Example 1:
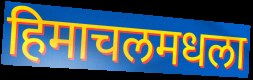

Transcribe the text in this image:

हिमाचलमधला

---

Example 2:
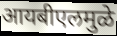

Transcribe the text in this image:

आयबीएलमुळे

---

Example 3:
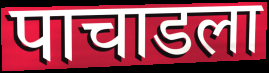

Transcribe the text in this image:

पाचाडला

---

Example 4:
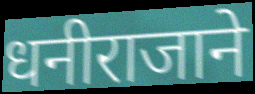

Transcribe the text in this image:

धनीराजाने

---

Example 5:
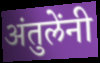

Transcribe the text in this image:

अंतुलेंनी